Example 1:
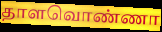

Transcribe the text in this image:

தாளவொண்ணா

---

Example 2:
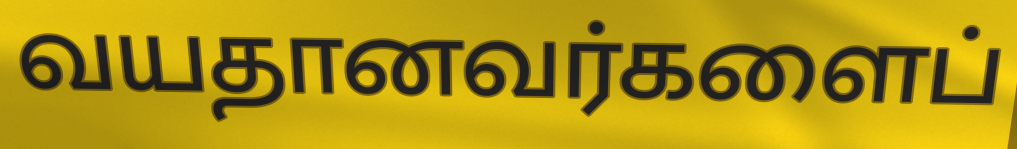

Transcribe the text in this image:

வயதானவர்களைப்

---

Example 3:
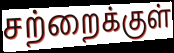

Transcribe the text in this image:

சற்றைக்குள்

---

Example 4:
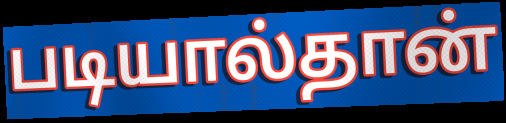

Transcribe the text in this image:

படியால்தான்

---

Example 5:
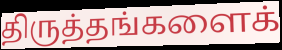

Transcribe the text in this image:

திருத்தங்களைக்